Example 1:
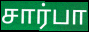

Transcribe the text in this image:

சார்பா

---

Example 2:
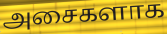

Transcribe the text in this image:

அசைகளாக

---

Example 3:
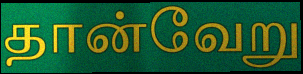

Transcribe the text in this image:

தான்வேறு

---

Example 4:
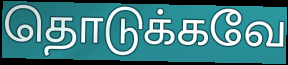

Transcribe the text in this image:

தொடுக்கவே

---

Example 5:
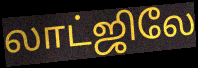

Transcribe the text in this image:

லாட்ஜிலே